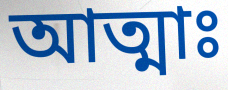
আত্মাঃ